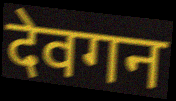
देवगन